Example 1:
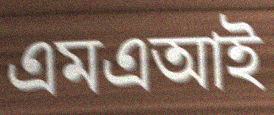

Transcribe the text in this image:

এমএআই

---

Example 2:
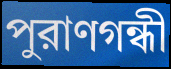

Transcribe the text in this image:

পুরাণগন্ধী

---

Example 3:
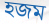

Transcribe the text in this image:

হজম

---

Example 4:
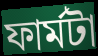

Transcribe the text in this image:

ফার্মটা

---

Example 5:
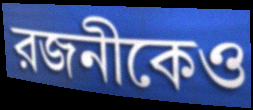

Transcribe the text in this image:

রজনীকেও